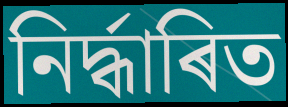
নিৰ্দ্ধাৰিত